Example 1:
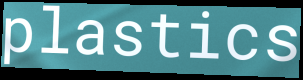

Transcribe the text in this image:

plastics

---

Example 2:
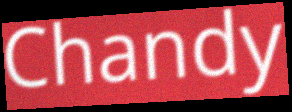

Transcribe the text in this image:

Chandy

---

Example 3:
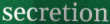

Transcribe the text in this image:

secretion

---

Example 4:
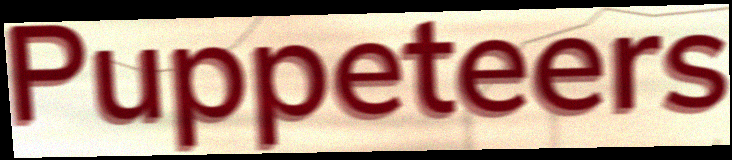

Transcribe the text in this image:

Puppeteers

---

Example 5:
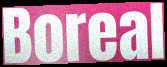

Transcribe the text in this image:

Boreal